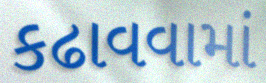
કઢાવવામાં